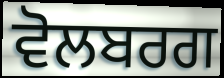
ਵੋਲਬਰਗ